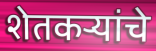
शेतकऱ्यांचे